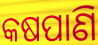
କଷପାଣି